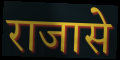
राजासे